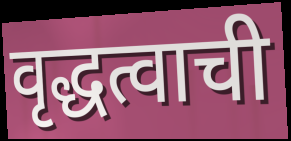
वृद्धत्वाची